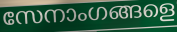
സേനാംഗങ്ങളെ